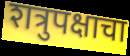
शत्रुपक्षाचा